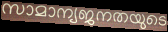
സാമാന്യജനതയുടെ